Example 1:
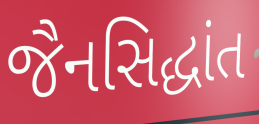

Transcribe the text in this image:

જૈનસિદ્ધાંત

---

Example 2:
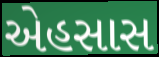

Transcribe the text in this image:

એહસાસ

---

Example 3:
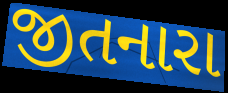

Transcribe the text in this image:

જીતનારા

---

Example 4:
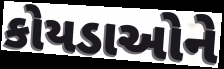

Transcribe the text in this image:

કોયડાઓને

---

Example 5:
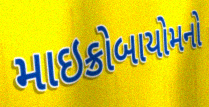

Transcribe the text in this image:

માઇક્રોબાયોમનો